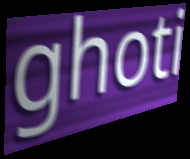
ghoti